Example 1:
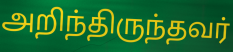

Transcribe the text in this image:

அறிந்திருந்தவர்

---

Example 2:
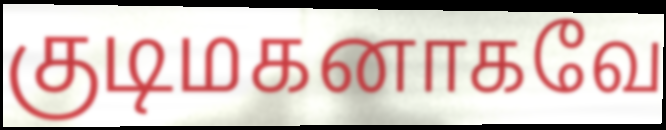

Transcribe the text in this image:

குடிமகனாகவே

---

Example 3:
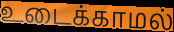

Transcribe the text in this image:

உடைக்காமல்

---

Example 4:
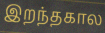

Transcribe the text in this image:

இறந்தகால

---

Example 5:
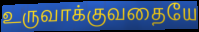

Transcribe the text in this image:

உருவாக்குவதையே